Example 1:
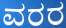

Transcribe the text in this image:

ವರರ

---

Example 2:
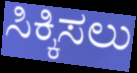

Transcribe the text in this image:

ಸಿಕ್ಕಿಸಲು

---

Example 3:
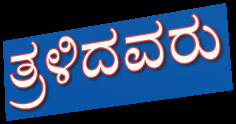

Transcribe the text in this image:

ತ್ರಳಿದವರು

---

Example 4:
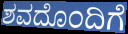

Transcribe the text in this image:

ಶವದೊಂದಿಗೆ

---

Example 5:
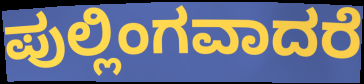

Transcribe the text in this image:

ಪುಲ್ಲಿಂಗವಾದರೆ